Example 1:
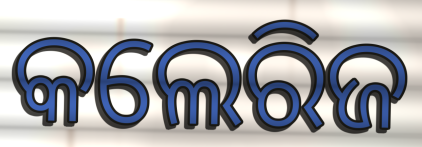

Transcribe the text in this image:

କଲେରିଜ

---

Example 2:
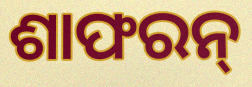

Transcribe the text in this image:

ଶାଫରନ୍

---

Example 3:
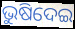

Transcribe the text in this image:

ଭୁଷିଦେଇ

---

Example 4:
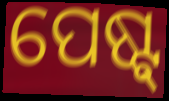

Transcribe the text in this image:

ପେଷ୍ଟ୍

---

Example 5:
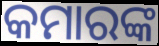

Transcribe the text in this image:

କମାରଙ୍କ